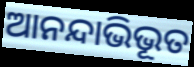
ଆନନ୍ଦାଭିଭୂତ